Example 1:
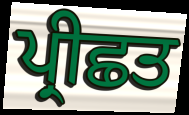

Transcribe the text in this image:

ਪ੍ਰੀਛਤ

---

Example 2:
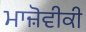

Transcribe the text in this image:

ਮਾਜ਼ੋਵੀਕੀ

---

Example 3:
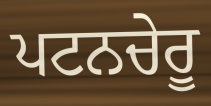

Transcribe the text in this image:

ਪਟਨਚੇਰੂ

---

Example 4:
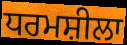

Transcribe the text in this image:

ਧਰਮਸ਼ੀਲਾ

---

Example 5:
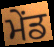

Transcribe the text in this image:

ਮੇਂਡ